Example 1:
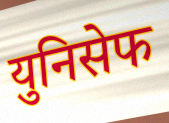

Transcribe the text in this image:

युनिसेफ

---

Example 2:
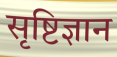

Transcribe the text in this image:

सृष्टिज्ञान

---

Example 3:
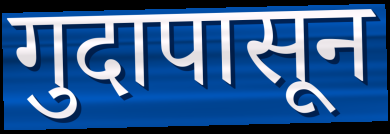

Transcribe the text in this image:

गुदापासून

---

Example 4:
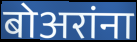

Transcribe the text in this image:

बोअरांना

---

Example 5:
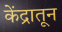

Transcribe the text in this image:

केंद्रातून